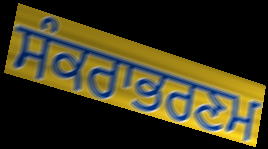
ਸੰਕਰਾਭਰਣਮ